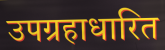
उपग्रहाधारित